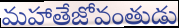
మహాతేజోవంతుడు